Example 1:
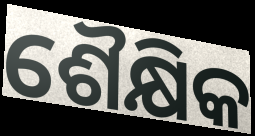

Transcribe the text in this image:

ଶୈକ୍ଷିକ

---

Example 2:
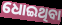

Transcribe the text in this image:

ଧୋଇଥିବା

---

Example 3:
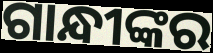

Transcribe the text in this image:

ଗାନ୍ଧୀଙ୍କର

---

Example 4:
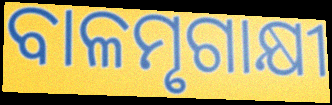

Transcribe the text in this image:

ବାଳମୃଗାକ୍ଷୀ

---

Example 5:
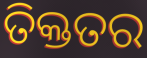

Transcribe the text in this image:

ତିକ୍ତତର